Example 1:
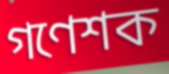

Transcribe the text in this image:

গণেশক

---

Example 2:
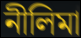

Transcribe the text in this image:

নীলিমা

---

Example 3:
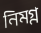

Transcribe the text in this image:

নিমগ্ন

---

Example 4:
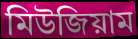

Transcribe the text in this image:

মিউজিয়াম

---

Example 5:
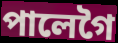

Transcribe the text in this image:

পালেগৈ